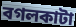
বগলকাটা